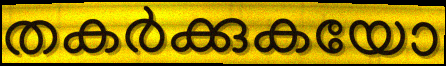
തകർക്കുകയോ